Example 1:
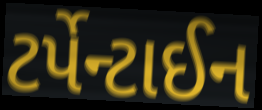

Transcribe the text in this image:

ટર્પેન્ટાઈન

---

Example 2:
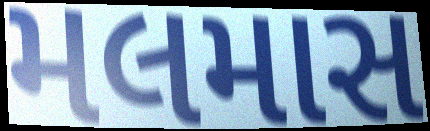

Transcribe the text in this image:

મલમાસ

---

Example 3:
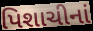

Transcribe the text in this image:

પિશાચીનાં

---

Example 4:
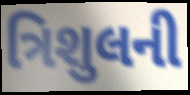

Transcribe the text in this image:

ત્રિશુલની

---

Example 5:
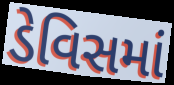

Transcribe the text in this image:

ડેવિસમાં